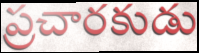
ప్రచారకుడు